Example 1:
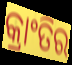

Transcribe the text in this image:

କ୍ରାଂତିର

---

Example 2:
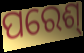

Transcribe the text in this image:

ପରେଶ୍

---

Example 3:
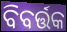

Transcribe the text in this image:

ବିବର୍ତ୍ତକ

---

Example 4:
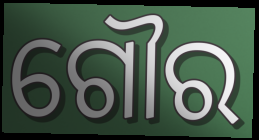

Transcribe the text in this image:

ଗୌର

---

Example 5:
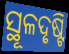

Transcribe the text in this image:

ସ୍ଥୂଳଦୃଷ୍ଟି